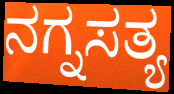
ನಗ್ನಸತ್ಯ